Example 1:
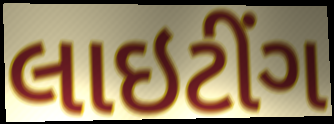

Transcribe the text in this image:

લાઇટીંગ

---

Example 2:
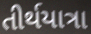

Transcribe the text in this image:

તીર્થયાત્રા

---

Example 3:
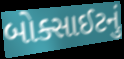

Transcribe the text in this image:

બોક્સાઈટનું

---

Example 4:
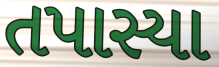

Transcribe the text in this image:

તપાસ્યા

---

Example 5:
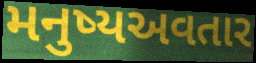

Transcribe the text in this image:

મનુષ્યઅવતાર